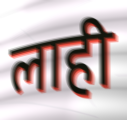
लाही